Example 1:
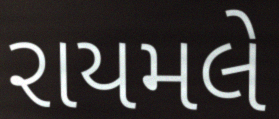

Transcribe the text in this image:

રાયમલે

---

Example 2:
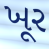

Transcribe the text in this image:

ખૂર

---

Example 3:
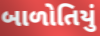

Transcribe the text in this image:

બાળોતિયું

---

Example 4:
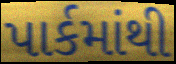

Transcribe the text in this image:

પાર્કમાંથી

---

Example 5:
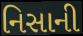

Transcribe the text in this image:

નિસાની